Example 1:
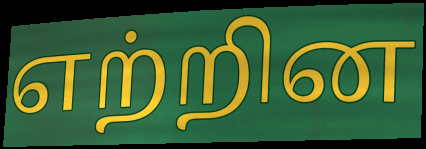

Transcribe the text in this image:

எற்றின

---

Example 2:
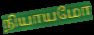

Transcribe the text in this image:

நியாயமோ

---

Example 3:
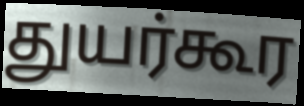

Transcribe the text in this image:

துயர்கூர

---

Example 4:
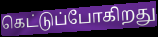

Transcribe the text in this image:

கெட்டுப்போகிறது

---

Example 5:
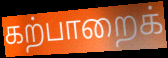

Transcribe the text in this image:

கற்பாறைக்